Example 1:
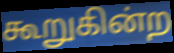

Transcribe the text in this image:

கூறுகின்ற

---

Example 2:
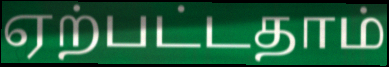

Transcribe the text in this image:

ஏற்பட்டதாம்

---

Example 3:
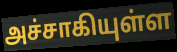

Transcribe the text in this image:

அச்சாகியுள்ள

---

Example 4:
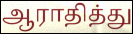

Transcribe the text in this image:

ஆராதித்து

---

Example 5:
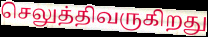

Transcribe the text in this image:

செலுத்திவருகிறது